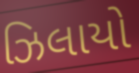
ઝિલાયો